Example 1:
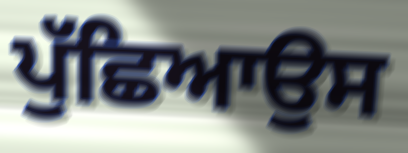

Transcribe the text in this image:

ਪੁੱਛਿਆਉਸ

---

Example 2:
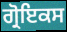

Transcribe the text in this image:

ਗ੍ਰੋਇਕਸ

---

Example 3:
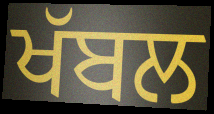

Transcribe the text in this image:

ਖੱਬਲ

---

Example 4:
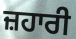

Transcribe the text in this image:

ਜ਼ਹਾਰੀ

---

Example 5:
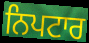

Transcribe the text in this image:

ਨਿਪਟਾਰ